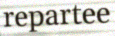
repartee